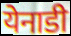
येनाडी